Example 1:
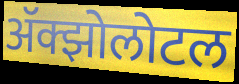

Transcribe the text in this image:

ॲक्झोलोटल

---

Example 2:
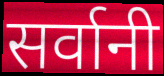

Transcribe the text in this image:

सर्वानी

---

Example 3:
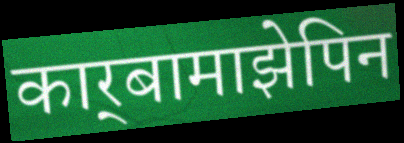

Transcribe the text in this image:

कार्बामाझेपिन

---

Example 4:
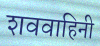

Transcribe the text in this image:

शववाहिनी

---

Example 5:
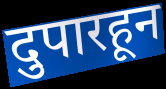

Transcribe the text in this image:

दुपारहून